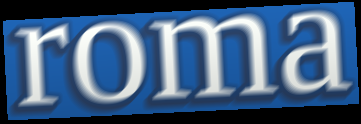
roma